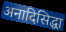
अनादिसिद्धा